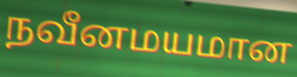
நவீனமயமான